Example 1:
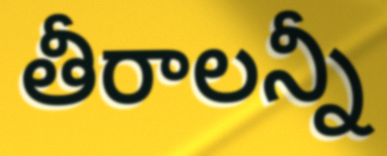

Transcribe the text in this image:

తీరాలన్నీ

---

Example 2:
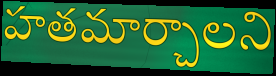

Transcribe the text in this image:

హతమార్చాలని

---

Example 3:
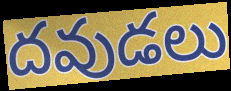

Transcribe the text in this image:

దవుడలు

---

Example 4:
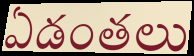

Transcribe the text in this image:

ఏడంతలు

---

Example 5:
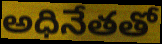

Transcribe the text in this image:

అధినేతతో